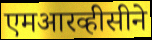
एमआरव्हीसीने